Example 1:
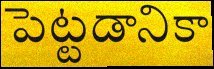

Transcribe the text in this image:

పెట్టడానికా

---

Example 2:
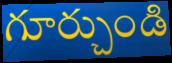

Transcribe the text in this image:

గూర్చుండి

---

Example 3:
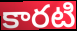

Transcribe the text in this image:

కారటి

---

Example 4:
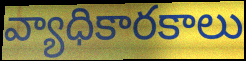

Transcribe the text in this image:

వ్యాధికారకాలు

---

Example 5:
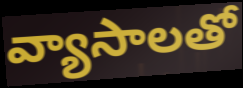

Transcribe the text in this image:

వ్యాసాలతో